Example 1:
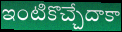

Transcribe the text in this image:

ఇంటికొచ్చేదాకా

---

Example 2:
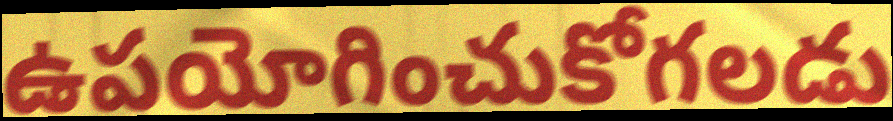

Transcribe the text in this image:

ఉపయోగించుకోగలడు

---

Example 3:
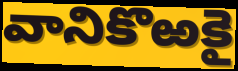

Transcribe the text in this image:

వానికొఱకై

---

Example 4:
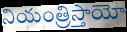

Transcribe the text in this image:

నియంత్రిస్తాయో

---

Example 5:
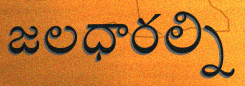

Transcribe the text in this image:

జలధారల్ని